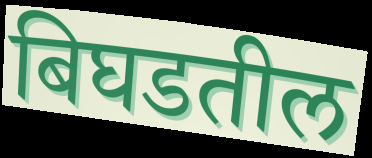
बिघडतील